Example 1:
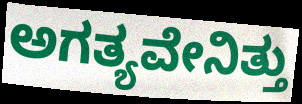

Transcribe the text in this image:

ಅಗತ್ಯವೇನಿತ್ತು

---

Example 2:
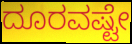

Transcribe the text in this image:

ದೂರವಷ್ಟೇ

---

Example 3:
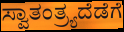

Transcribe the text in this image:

ಸ್ವಾತಂತ್ರ್ಯದೆಡೆಗೆ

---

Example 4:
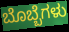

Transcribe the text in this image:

ಬೊಬ್ಬೆಗಳು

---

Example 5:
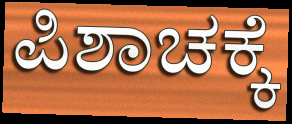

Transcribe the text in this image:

ಪಿಶಾಚಕ್ಕೆ